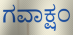
ಗವಾಕ್ಷಂ